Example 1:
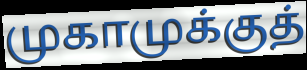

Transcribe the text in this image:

முகாமுக்குத்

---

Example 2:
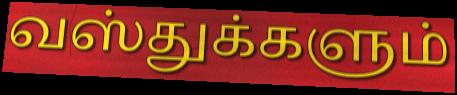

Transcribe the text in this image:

வஸ்துக்களும்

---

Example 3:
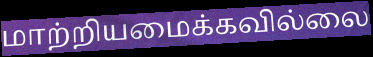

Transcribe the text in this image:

மாற்றியமைக்கவில்லை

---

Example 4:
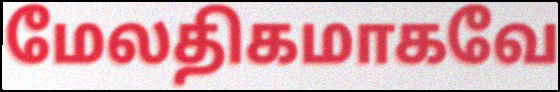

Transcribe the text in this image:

மேலதிகமாகவே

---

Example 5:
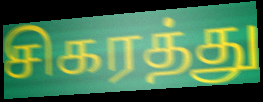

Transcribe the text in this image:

சிகரத்து